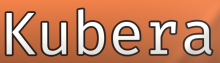
Kubera